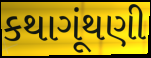
કથાગૂંથણી